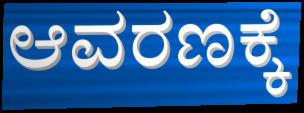
ಆವರಣಕ್ಕೆ